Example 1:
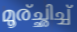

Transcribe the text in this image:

മൂര്ച്ഛിച്ച്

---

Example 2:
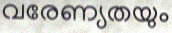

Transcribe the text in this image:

വരേണ്യതയും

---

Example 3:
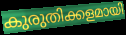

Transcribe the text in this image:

കുരുതിക്കളമായി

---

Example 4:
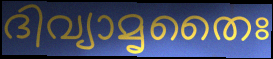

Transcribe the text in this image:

ദിവ്യാമൃതൈഃ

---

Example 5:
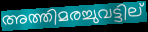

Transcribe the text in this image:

അത്തിമരച്ചുവട്ടില്